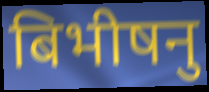
बिभीषनु